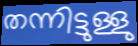
തന്നിട്ടുള്ളു